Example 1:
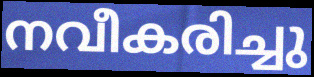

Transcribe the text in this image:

നവീകരിച്ചു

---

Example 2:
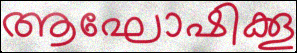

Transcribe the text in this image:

ആഘോഷിക്കൂ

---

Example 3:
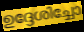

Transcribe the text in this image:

ഉദ്ദേശിച്ചോ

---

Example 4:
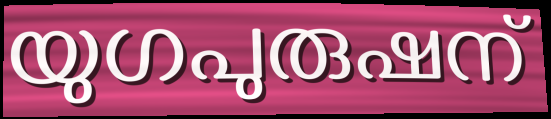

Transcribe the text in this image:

യുഗപുരുഷന്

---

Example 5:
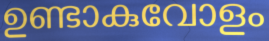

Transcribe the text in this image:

ഉണ്ടാകുവോളം